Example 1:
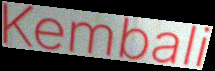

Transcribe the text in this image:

Kembali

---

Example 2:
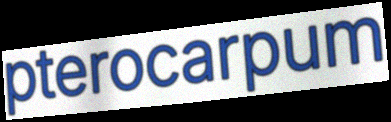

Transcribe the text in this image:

pterocarpum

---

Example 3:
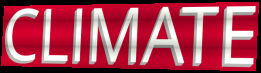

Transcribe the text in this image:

CLIMATE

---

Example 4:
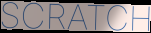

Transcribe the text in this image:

SCRATCH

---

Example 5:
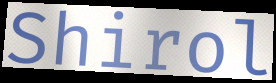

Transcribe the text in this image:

Shirol